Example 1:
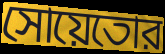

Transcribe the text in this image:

সোয়েতোর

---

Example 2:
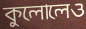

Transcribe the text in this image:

কুলোলেও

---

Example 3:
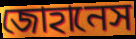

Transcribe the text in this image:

জোহানেস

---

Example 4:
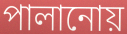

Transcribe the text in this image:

পালানোয়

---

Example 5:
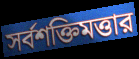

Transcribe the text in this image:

সর্বশক্তিমত্তার